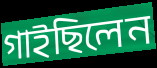
গাইছিলেন